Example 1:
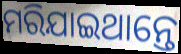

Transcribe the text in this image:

ମରିଯାଇଥାନ୍ତେ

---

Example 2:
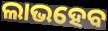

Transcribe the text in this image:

ଲାଭହେବ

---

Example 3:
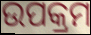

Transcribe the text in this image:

ଉପକ୍ରମ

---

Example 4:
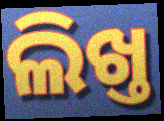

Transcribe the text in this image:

ଲିଖ୍ତ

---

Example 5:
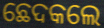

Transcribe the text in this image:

ଛେଦକଲେ